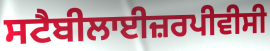
ਸਟੈਬੀਲਾਈਜ਼ਰਪੀਵੀਸੀ